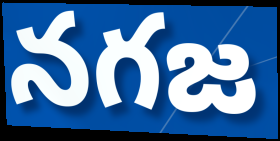
నగజ